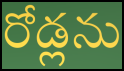
రోడ్లను